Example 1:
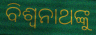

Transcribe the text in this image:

ବିଶ୍ବନାଥଙ୍କୁ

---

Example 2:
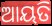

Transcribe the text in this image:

ଆୟତି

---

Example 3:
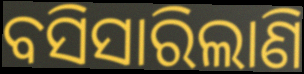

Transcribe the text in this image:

ବସିସାରିଲାଣି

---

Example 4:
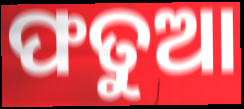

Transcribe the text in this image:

ଫତୁଆ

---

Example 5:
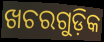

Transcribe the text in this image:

ଖଚରଗୁଡ଼ିକ